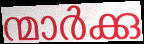
ന്മാർക്കു